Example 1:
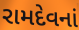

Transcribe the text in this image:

રામદેવનાં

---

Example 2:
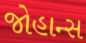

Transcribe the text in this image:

જોહાન્સ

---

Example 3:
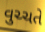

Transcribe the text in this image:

વુચ્ચતે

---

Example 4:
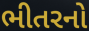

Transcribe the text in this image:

ભીતરનો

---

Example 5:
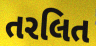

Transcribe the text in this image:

તરલિત